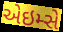
એઇમ્સે